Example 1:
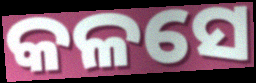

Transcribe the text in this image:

କଳସେ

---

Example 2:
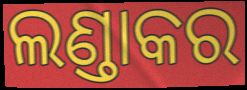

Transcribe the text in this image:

ଲଣ୍ଡାକର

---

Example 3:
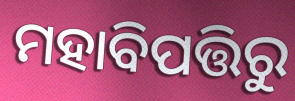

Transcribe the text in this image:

ମହାବିପତ୍ତିରୁ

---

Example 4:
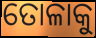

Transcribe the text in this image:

ତୋଳାକୁ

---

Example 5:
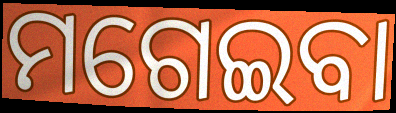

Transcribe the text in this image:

ମଗେଇବା